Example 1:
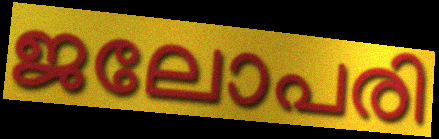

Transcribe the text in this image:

ജലോപരി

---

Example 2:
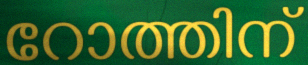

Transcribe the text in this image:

റോത്തിന്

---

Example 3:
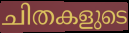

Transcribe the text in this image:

ചിതകളുടെ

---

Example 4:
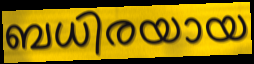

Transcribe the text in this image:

ബധിരയായ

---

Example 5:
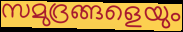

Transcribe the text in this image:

സമുദ്രങ്ങളെയും